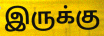
இருக்கு